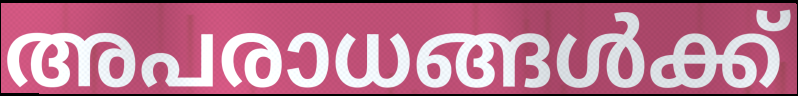
അപരാധങ്ങൾക്ക്